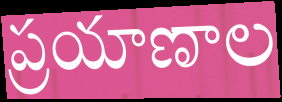
ప్రయాణాల